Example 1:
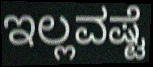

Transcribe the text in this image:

ಇಲ್ಲವಷ್ಟೆ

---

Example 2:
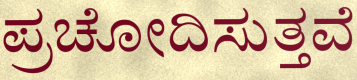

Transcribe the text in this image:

ಪ್ರಚೋದಿಸುತ್ತವೆ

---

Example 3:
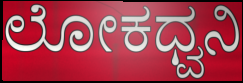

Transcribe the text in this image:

ಲೋಕಧ್ವನಿ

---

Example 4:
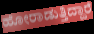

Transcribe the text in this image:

ಹೋರಾಡುತ್ತಿದ್ದಾರೆ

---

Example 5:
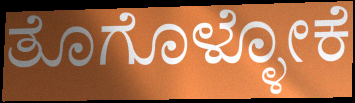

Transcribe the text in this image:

ತೊಗೊಳ್ಳೋಕೆ